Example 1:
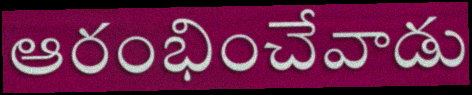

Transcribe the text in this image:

ఆరంభించేవాడు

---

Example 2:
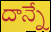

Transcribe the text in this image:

దాన్నే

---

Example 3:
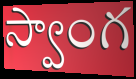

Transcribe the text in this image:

స్వాంగ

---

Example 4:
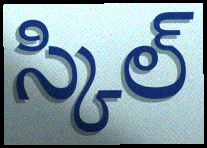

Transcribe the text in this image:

స్కిల్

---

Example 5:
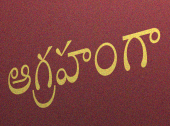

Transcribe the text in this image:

ఆగ్రహంగా